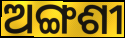
ଅଙ୍ଗଶୀ